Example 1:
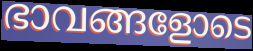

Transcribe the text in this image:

ഭാവങ്ങളോടെ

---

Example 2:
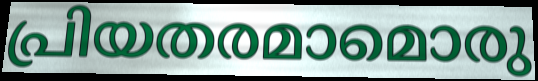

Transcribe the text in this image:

പ്രിയതരമാമൊരു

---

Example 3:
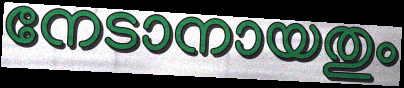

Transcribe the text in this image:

നേടാനായതും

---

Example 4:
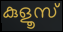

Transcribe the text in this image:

കുളൂസ്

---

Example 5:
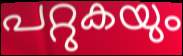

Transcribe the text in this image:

പറ്റുകയും